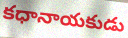
కధానాయకుడు